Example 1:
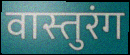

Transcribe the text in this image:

वास्तुरंग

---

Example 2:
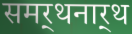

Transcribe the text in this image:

समर्थनार्थ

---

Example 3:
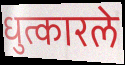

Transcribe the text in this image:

धुत्कारले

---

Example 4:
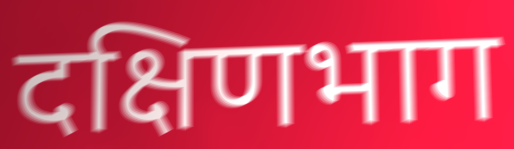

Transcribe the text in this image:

दक्षिणभाग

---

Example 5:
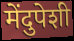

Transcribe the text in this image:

मेंदुपेशी